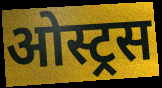
ओस्ट्रस